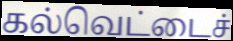
கல்வெட்டைச்